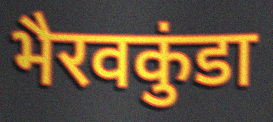
भैरवकुंडा